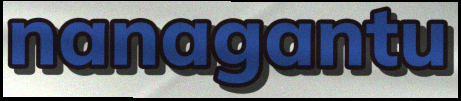
nanagantu